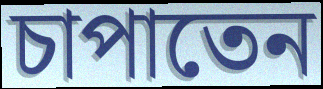
চাপাতেন